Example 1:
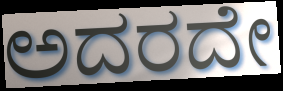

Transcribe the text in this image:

ಅದರದೇ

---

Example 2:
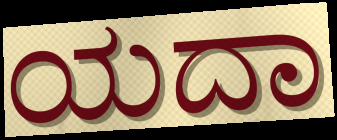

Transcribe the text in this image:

ಯದಾ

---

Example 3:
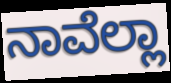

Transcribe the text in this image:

ನಾವೆಲ್ಲಾ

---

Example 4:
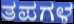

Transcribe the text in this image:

ತಪಗಳ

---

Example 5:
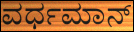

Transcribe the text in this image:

ವರ್ಧಮಾನ್